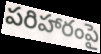
పరిహారంపై